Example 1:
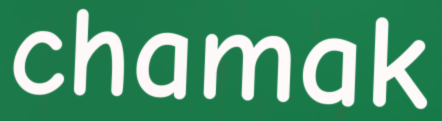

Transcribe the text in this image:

chamak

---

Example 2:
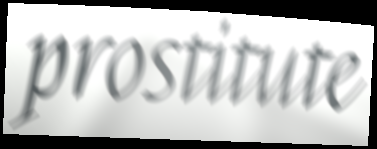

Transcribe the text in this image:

prostitute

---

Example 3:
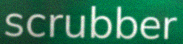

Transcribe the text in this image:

scrubber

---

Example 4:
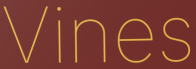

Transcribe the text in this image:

Vines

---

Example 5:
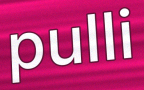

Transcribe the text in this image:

pulli